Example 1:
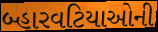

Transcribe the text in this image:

બ્હારવટિયાઓની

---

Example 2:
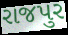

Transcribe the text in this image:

રાજપુર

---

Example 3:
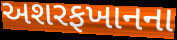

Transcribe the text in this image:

અશરફખાનના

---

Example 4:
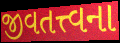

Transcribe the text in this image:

જીવતત્ત્વના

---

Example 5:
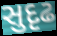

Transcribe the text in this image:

સુદૃઢ